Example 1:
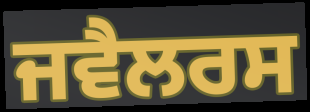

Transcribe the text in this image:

ਜਵੈਲਰਸ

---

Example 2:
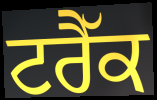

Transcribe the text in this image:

ਟਰੈੱਕ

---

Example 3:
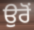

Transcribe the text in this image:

ਉਰੋਂ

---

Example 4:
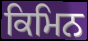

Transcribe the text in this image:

ਕਿਮਿਨ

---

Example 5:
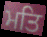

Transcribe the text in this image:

ਮਤਿ